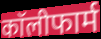
कॉलीफार्म